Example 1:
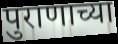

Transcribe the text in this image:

पुराणाच्या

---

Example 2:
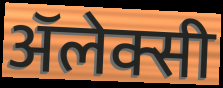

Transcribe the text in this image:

ॲलेक्सी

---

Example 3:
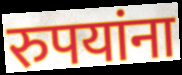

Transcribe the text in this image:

रुपयांना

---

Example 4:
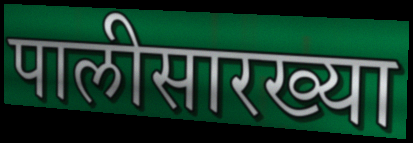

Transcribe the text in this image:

पालीसारख्या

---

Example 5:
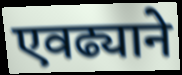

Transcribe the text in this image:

एवढ्याने